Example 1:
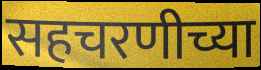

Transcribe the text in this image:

सहचरणीच्या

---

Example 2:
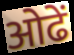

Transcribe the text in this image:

ओढें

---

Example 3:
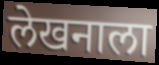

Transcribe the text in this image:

लेखनाला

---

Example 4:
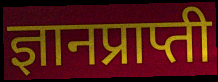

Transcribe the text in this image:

ज्ञानप्राप्ती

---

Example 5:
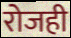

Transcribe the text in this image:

रोजही